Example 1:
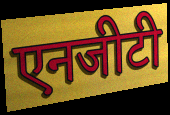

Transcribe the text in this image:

एनजीटी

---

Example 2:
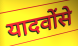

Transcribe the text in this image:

यादवोंसे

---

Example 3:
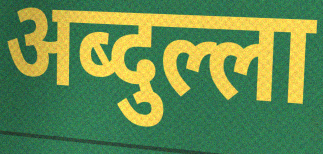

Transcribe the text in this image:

अब्दुल्ला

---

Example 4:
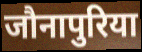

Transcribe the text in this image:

जौनापुरिया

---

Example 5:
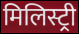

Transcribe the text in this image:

मिलिस्ट्री